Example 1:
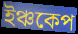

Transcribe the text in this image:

ইঞ্চকেপ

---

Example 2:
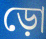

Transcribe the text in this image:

ড়ো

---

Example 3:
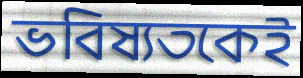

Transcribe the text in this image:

ভবিষ্যতকেই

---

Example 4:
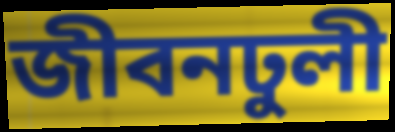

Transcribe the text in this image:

জীবনঢুলী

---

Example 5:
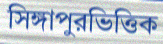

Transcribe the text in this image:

সিঙ্গাপুরভিত্তিক